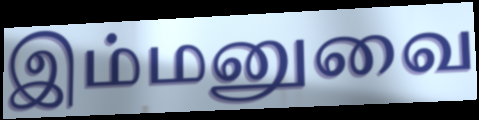
இம்மனுவை